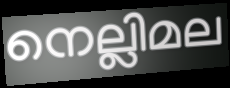
നെല്ലിമല